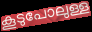
കൂടുപോലുള്ള